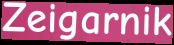
Zeigarnik